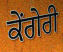
ਕੇਂਗੇਰੀ